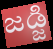
జడ్జి